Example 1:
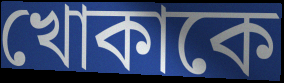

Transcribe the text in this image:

খোকাকে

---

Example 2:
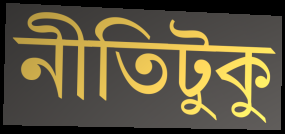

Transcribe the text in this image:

নীতিটুকু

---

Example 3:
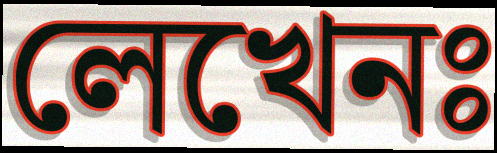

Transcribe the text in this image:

লেখেনঃ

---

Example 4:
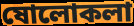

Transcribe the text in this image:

ষোলোকলা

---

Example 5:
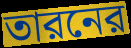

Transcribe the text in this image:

তারনের